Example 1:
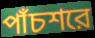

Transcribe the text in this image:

পাঁচশরে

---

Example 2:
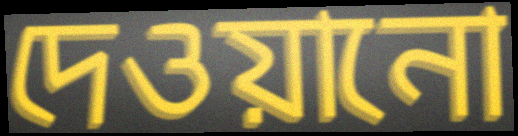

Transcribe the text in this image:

দেওয়ানো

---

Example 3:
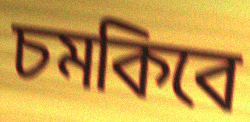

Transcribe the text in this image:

চমকিবে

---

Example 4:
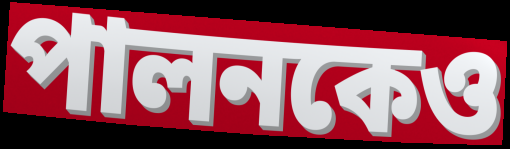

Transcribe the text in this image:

পালনকেও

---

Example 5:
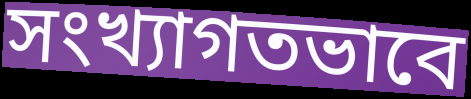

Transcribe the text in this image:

সংখ্যাগতভাবে